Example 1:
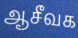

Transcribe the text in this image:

ஆசீவக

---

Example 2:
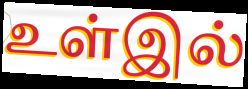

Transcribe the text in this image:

உள்இல்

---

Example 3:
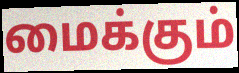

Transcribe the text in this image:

மைக்கும்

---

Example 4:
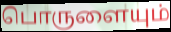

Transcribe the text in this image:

பொருளையும்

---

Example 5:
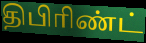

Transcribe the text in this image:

திபிரிண்ட்